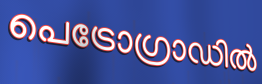
പെട്രോഗ്രാഡിൽ